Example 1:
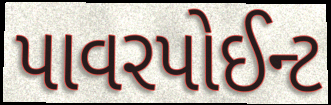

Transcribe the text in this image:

પાવરપોઈન્ટ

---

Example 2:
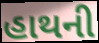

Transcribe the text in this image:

હાથની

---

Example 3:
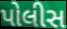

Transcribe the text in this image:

પોલીસ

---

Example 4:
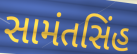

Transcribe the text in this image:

સામંતસિંહ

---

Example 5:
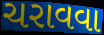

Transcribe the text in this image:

ચરાવવા